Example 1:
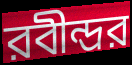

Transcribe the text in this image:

রবীন্দ্রর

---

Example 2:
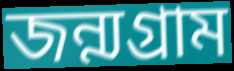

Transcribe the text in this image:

জন্মগ্রাম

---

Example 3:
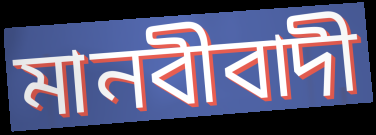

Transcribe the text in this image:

মানবীবাদী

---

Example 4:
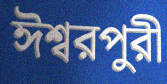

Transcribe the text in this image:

ঈশ্বরপুরী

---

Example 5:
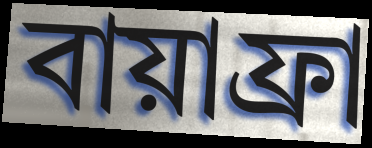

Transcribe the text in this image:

বায়াফ্রা